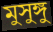
মুসুঙ্গু